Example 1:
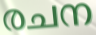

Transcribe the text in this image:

രചന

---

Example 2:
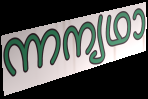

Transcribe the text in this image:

ന്നന്യഥാ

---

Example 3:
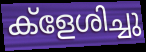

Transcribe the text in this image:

ക്ളേശിച്ചു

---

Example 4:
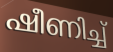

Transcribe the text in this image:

ഷീണിച്ച്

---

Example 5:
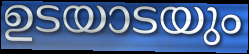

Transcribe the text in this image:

ഉടയാടയും